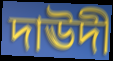
দাঊদী